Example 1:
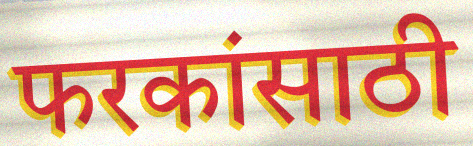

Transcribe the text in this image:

फरकांसाठी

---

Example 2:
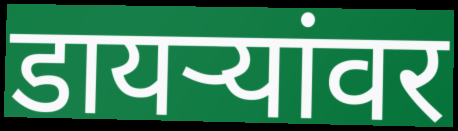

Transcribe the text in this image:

डायऱ्यांवर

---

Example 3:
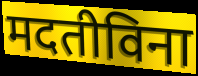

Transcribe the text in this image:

मदतीविना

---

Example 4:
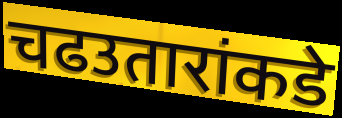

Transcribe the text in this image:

चढउतारांकडे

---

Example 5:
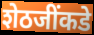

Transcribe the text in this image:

शेठजींकडे